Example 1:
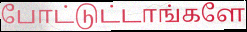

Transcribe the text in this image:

போட்டுட்டாங்களே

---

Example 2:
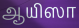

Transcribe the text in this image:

ஆயிஸா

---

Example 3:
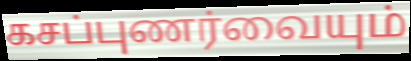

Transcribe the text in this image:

கசப்புணர்வையும்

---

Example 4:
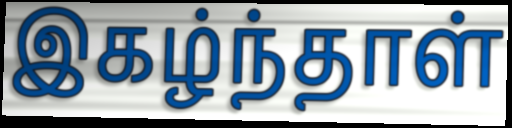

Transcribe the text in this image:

இகழ்ந்தாள்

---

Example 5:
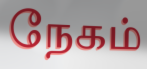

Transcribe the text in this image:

நேகம்